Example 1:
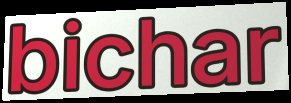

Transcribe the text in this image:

bichar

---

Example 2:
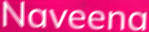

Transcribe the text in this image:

Naveena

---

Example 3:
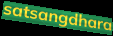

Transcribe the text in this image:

satsangdhara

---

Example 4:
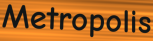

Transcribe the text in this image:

Metropolis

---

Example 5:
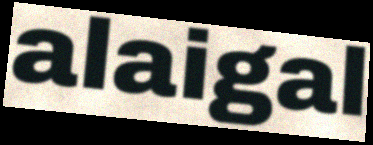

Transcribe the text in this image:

alaigal